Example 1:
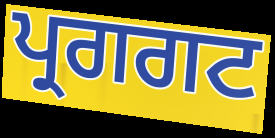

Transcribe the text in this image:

ਪ੍ਰਗਗਟ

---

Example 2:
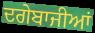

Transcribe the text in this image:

ਦਗੇਬਾਜੀਆਂ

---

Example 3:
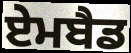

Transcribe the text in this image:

ਏਮਬੈਡ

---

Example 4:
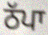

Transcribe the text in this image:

ਠੱਪਾ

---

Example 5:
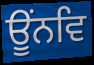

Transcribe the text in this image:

ਊਂਨਵਿ